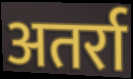
अतर्रा